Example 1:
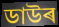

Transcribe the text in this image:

ডাউৰ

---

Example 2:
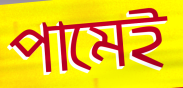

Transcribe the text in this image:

পামেই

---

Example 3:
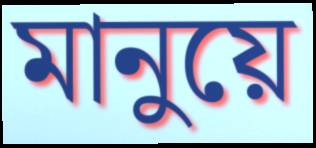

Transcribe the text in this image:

মানুয়ে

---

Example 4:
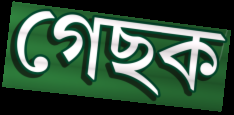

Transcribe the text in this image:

গেছক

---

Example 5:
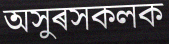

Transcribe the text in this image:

অসুৰসকলক